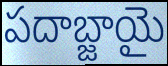
పదాబ్జాయై